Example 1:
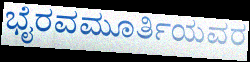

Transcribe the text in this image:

ಭೈರವಮೂರ್ತಿಯವರ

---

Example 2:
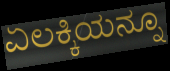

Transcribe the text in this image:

ಏಲಕ್ಕಿಯನ್ನೂ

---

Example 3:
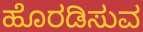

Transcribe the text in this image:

ಹೊರಡಿಸುವ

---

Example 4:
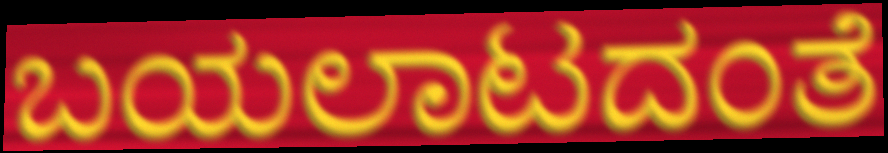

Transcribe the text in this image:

ಬಯಲಾಟದಂತೆ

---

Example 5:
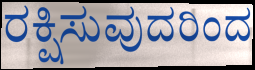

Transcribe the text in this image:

ರಕ್ಷಿಸುವುದರಿಂದ